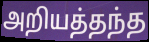
அறியத்தந்த